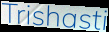
Trishasti